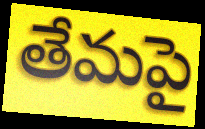
తేమపై